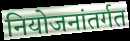
नियोजनांतर्गत